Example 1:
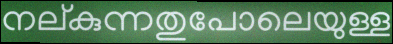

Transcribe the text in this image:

നല്കുന്നതുപോലെയുള്ള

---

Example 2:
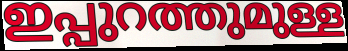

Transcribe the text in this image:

ഇപ്പുറത്തുമുള്ള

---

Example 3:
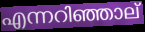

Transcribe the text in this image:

എന്നറിഞ്ഞാല്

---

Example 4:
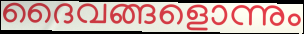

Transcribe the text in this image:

ദൈവങ്ങളൊന്നും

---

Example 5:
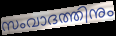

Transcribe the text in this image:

സംവാദത്തിനും